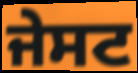
ਜੇਸਟ